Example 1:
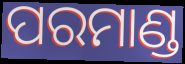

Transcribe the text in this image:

ପରମାଣ୍ଡ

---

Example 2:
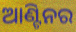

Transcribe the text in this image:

ଆଣ୍ଟିନର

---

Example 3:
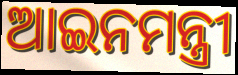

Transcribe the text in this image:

ଆଇନମନ୍ତ୍ରୀ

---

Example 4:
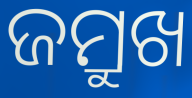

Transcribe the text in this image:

ଜମ୍ରୁଖ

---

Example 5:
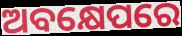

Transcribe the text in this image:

ଅବକ୍ଷେପରେ